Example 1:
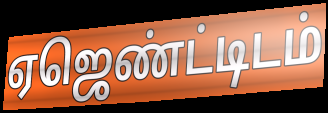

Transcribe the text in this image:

ஏஜெண்ட்டிடம்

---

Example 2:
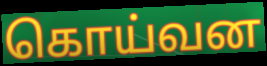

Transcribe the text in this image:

கொய்வன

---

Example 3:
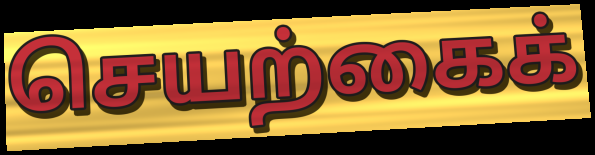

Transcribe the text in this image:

செயற்கைக்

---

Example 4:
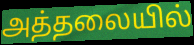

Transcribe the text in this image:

அத்தலையில்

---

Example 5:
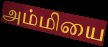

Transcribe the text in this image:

அம்மியை